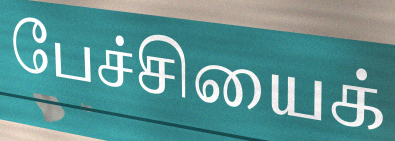
பேச்சியைக்